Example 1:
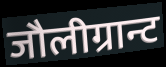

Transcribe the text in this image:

जौलीग्रान्ट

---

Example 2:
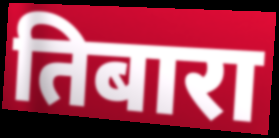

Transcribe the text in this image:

तिबारा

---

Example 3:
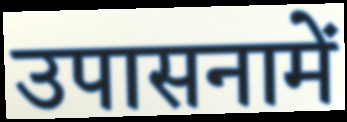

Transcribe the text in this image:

उपासनामें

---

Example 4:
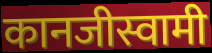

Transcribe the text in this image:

कानजीस्वामी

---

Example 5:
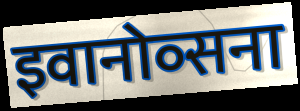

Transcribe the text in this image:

इवानोव्सना